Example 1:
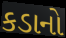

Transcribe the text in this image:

કડાનો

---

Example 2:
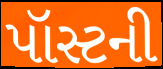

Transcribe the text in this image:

પૉસ્ટની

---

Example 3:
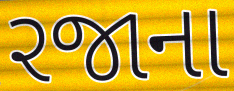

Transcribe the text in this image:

રજાના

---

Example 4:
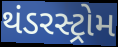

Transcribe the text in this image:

થંડરસ્ટ્રોમ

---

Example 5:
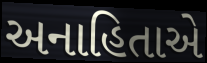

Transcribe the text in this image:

અનાહિતાએ